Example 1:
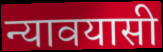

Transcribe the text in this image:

न्यावयासी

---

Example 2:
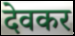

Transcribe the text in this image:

देवकर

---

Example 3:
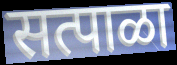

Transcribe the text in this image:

सत्पाळा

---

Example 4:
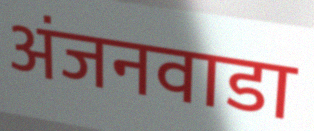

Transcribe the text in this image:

अंजनवाडा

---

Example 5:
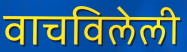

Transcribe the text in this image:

वाचविलेली